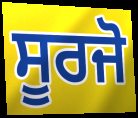
ਸੂਰਜੋ